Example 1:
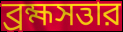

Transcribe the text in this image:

ব্রহ্মসত্তার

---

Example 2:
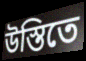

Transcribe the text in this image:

উস্তিতে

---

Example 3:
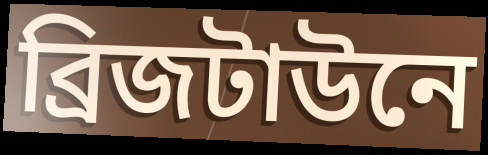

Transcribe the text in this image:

ব্রিজটাউনে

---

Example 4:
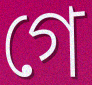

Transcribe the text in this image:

গে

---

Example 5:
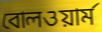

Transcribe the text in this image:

বোলওয়ার্ম